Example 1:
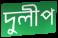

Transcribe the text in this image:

দুলীপ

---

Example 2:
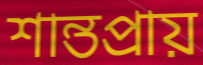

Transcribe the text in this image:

শান্তপ্রায়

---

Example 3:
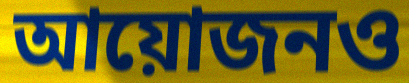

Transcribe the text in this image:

আয়োজনও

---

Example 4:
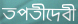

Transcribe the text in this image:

তপতীদেবী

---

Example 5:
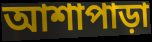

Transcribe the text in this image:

আশাপাড়া